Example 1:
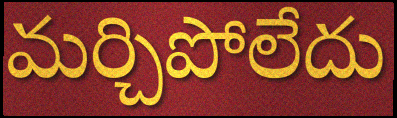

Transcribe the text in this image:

మర్చిపోలేదు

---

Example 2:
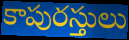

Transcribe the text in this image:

కాపురస్తులు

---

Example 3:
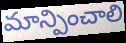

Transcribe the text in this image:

మాన్పించాలి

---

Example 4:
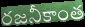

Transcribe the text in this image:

రజనీకాంత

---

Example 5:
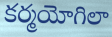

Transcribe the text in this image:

కర్మయోగిలా